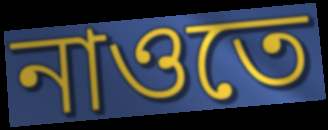
নাওতে